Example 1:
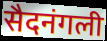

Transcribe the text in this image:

सैदनंगली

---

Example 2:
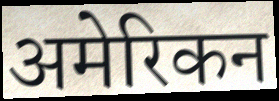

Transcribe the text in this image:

अमेरिकन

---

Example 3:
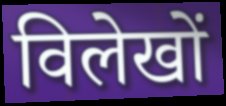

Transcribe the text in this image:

विलेखों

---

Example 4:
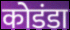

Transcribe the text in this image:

कोडंडा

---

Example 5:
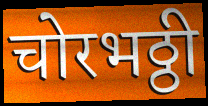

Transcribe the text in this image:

चोरभठ्ठी